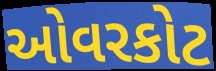
ઓવરકોટ